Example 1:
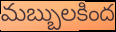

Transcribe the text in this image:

మబ్బులకింద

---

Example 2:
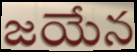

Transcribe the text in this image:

జయేన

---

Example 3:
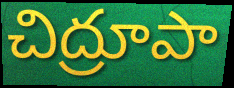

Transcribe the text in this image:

చిద్రూపా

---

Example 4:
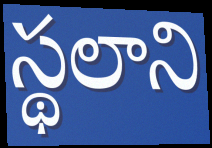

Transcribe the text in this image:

స్థలాని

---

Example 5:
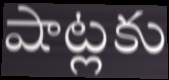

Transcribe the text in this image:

షాట్లకు